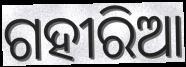
ଗହୀରିଆ